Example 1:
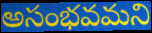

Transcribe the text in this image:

అసంభవమని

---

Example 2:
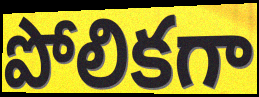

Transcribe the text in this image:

పోలికగా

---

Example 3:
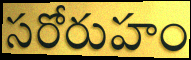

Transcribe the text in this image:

సరోరుహం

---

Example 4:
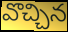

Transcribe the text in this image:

వొచ్చిన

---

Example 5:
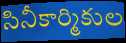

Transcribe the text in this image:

సినీకార్మికుల